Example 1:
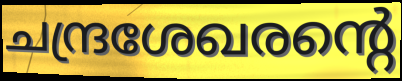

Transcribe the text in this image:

ചന്ദ്രശേഖരന്റെ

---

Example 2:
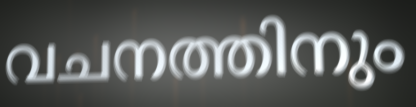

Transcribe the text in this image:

വചനത്തിനും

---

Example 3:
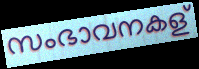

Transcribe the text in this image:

സംഭാവനകള്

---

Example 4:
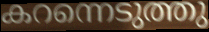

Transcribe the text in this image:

കറന്നെടുത്തു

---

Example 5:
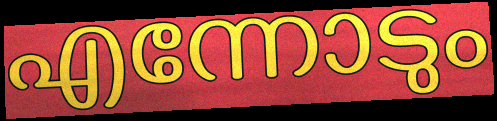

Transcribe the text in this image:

എന്നോടും